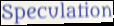
Speculation